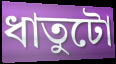
ধাতুটো